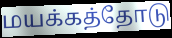
மயக்கத்தோடு